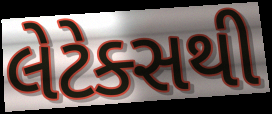
લેટેક્સથી